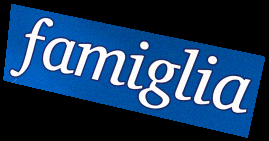
famiglia